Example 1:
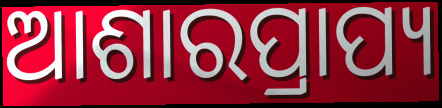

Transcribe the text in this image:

ଆଶାରପ୍ରାପ୍ୟ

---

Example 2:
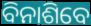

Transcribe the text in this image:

ବିନାଶିବେ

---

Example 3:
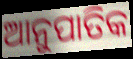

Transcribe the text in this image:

ଆନୁପାତିକ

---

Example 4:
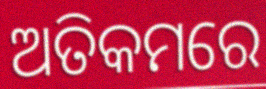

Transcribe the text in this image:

ଅତିକମରେ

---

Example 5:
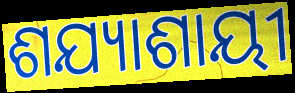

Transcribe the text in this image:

ଶଯ୍ୟାଶାୟୀ